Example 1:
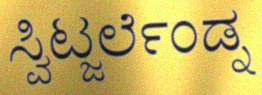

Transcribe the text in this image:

ಸ್ವಿಟ್ಜರ್ಲೆಂಡ್ನ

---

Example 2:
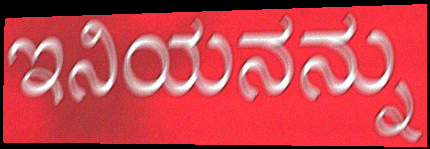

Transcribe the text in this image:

ಇನಿಯನನ್ನು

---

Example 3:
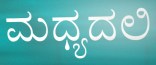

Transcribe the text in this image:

ಮಧ್ಯದಲಿ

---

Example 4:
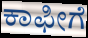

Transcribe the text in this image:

ಕಾಫೀಗೆ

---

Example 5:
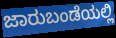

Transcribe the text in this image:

ಜಾರುಬಂಡೆಯಲ್ಲಿ